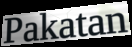
Pakatan